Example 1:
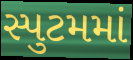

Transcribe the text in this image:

સ્પુટમમાં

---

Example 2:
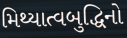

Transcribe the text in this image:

મિથ્યાત્વબુદ્ધિનો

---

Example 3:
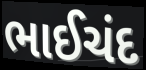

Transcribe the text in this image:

ભાઈચંદ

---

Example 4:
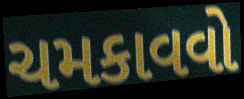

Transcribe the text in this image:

ચમકાવવો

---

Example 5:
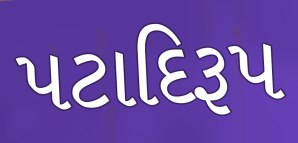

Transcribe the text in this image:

પટાદિરૂપ